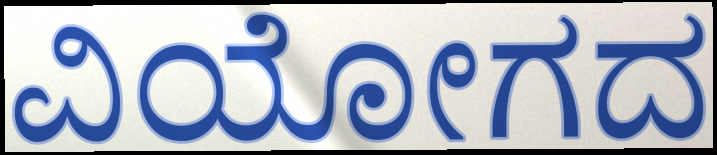
ವಿಯೋಗದ